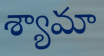
శ్యామా